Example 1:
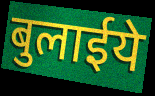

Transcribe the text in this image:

बुलाईये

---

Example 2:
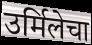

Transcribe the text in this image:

उर्मिलेचा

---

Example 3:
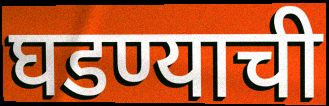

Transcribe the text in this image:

घडण्याची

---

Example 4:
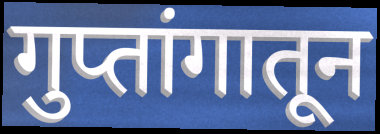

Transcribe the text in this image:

गुप्तांगातून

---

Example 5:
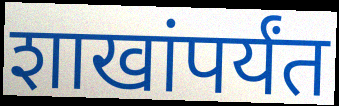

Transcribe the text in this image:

शाखांपर्यंत